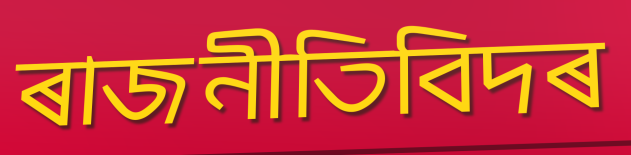
ৰাজনীতিবিদৰ